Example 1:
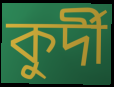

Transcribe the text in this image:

কুর্দী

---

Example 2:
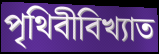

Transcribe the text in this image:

পৃথিবীবিখ্যাত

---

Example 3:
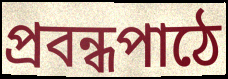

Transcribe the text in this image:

প্রবন্ধপাঠে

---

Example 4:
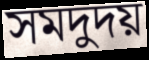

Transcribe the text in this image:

সমদুদয়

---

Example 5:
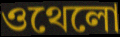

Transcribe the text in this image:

ওথেলো